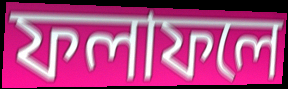
ফলাফলে